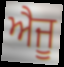
ਐਜੂ